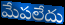
మేపలేదు